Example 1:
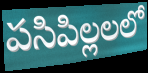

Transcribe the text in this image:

పసిపిల్లలలో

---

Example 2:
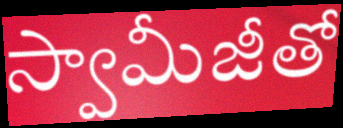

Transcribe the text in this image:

స్వామీజీతో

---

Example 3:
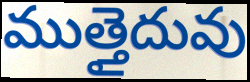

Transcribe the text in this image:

ముత్తైదువు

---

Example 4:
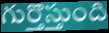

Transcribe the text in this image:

గుర్తొస్తుంది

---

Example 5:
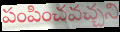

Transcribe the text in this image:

పంపించవచ్చని